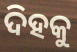
ଦିହକୁ